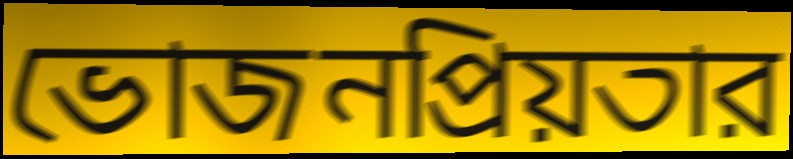
ভোজনপ্রিয়তার